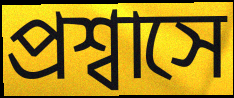
প্রশ্বাসে